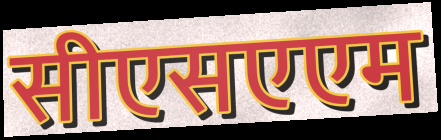
सीएसएएम